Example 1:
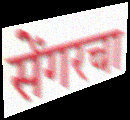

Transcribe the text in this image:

सेंगरचा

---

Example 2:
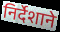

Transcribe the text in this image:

निर्देशाने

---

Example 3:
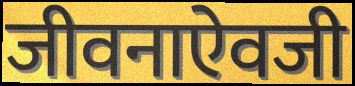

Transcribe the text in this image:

जीवनाऐवजी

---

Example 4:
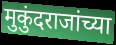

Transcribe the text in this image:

मुकुंदराजांच्या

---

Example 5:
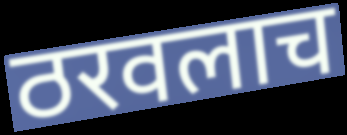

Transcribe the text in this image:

ठरवलाच